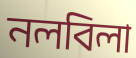
নলবিলা